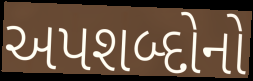
અપશબ્દોનો